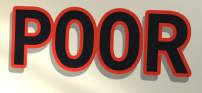
POOR